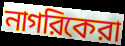
নাগরিকেরা